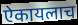
ऐकायलाच